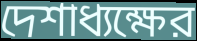
দেশাধ্যক্ষের